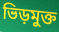
ভিড়মুক্ত